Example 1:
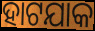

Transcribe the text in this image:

ହାଟଯାକ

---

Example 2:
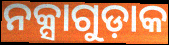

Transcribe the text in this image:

ନକ୍ସାଗୁଡ଼ାକ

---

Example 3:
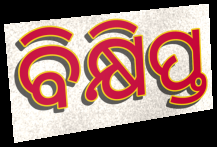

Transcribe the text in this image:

ବିକ୍ଷିପ୍ତ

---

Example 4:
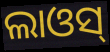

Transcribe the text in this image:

ଲାଓସ୍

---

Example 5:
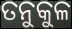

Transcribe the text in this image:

ତନୁକୁଳ